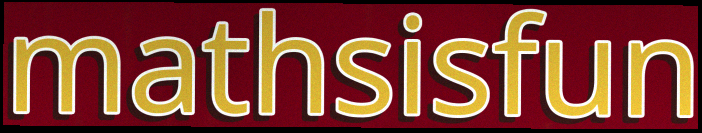
mathsisfun